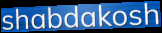
shabdakosh